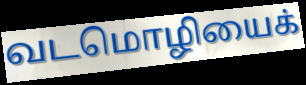
வடமொழியைக்